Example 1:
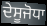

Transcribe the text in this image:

ਦੇਸੂਜੋਧਾ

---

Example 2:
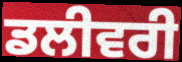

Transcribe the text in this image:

ਡਲੀਵਰੀ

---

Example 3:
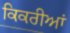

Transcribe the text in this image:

ਕਿਕਰੀਆਂ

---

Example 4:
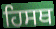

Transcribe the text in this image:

ਹਿਸਥ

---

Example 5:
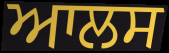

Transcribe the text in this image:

ਆਲਸ